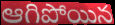
ఆగిపోయిన